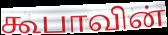
கூபாவின்